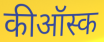
कीऑस्क